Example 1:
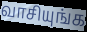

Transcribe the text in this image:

வாசியுங்க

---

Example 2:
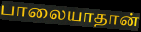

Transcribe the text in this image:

பாலையாதான்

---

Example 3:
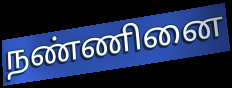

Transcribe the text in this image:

நண்ணினை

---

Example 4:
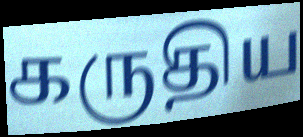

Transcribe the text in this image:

கருதிய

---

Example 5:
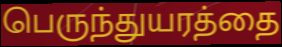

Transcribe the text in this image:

பெருந்துயரத்தை